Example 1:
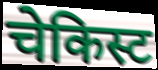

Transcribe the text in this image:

चेकिस्ट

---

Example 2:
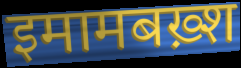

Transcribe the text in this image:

इमामबख़्श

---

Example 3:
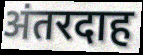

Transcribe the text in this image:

अंतरदाह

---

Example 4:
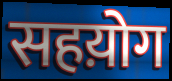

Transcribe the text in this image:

सहय़ोग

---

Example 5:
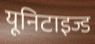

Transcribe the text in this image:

यूनिटाइज्ड